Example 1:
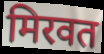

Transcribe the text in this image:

मिरवत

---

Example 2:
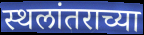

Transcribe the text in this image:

स्थलांतराच्या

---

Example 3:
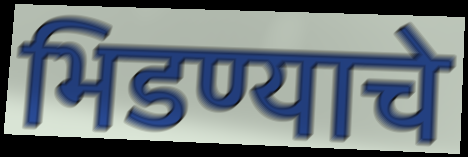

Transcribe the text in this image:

भिडण्याचे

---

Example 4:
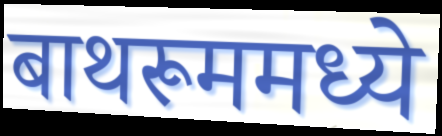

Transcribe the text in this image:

बाथरूममध्ये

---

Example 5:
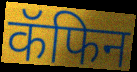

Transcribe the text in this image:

कॅफिन